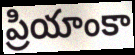
ప్రియాంకా